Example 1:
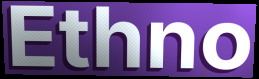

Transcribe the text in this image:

Ethno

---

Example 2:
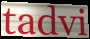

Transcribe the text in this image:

tadvi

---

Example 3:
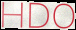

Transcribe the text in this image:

HDO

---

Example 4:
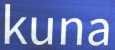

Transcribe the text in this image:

kuna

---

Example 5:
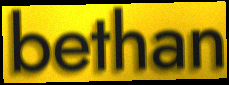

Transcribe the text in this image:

bethan